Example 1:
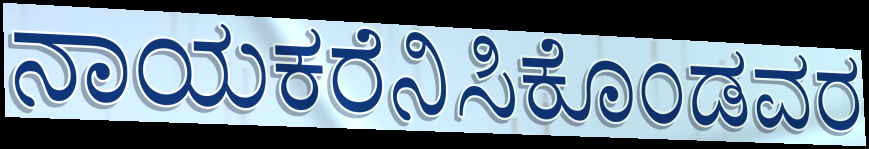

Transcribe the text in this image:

ನಾಯಕರೆನಿಸಿಕೊಂಡವರ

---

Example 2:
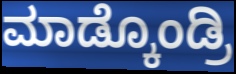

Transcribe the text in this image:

ಮಾಡ್ಕೊಂಡ್ರಿ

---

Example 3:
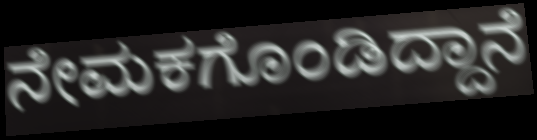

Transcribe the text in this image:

ನೇಮಕಗೊಂಡಿದ್ದಾನೆ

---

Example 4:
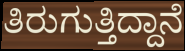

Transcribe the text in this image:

ತಿರುಗುತ್ತಿದ್ದಾನೆ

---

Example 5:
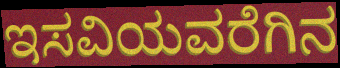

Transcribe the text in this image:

ಇಸವಿಯವರೆಗಿನ